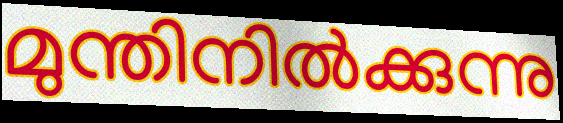
മുന്തിനിൽക്കുന്നു